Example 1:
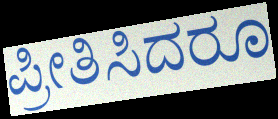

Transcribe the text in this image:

ಪ್ರೀತಿಸಿದರೂ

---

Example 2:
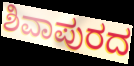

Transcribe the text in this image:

ಶಿವಾಪುರದ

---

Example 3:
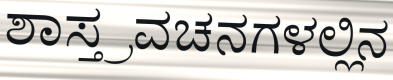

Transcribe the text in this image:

ಶಾಸ್ತ್ರವಚನಗಳಲ್ಲಿನ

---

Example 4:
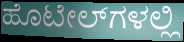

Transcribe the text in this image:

ಹೊಟೇಲ್‌ಗಳಲ್ಲಿ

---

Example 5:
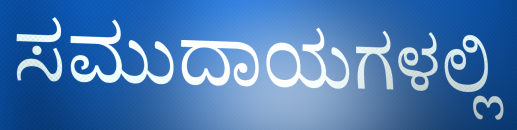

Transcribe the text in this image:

ಸಮುದಾಯಗಳಲ್ಲಿ